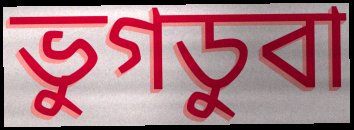
ভুগডুবা